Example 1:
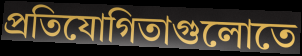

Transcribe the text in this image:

প্রতিযোগিতাগুলোতে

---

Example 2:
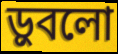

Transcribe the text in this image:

ড়ুবলো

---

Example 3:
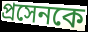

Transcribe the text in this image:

প্রসেনকে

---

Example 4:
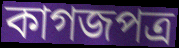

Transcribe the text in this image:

কাগজপত্র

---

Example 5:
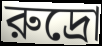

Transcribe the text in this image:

রুদ্রো